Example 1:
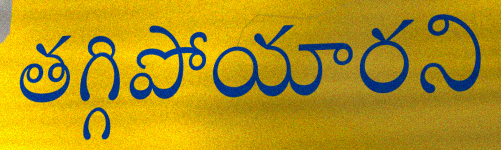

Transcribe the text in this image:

తగ్గిపోయారని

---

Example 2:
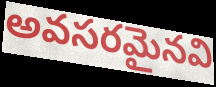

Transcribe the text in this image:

అవసరమైనవి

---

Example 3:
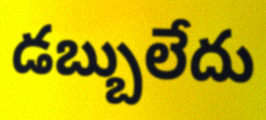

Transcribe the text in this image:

డబ్బులేదు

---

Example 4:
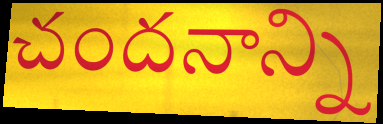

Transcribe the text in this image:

చందనాన్ని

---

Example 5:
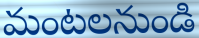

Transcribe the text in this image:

మంటలనుండి